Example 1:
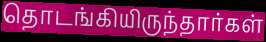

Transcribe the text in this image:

தொடங்கியிருந்தார்கள்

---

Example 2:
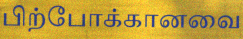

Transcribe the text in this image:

பிற்போக்கானவை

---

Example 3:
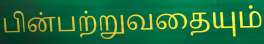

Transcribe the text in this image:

பின்பற்றுவதையும்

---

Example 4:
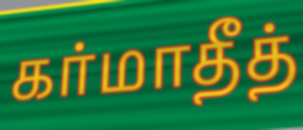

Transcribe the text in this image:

கர்மாதீத்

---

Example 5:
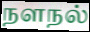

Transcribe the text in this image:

நளநல்